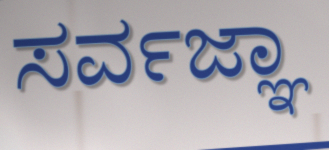
ಸರ್ವಜ್ಞಾ